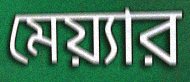
মেয়্যার